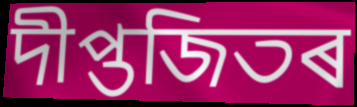
দীপ্তজিতৰ